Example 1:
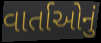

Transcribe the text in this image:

વાર્તાઓનું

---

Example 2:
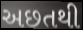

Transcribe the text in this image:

અછતથી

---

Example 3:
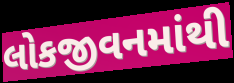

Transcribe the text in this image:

લોકજીવનમાંથી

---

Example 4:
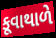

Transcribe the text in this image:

કૂવાથાળે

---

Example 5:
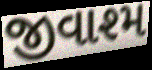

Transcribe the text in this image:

જીવાશ્મ